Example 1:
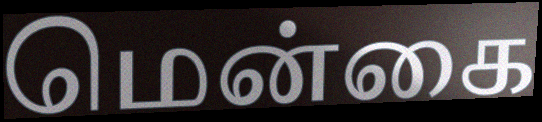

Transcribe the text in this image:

மென்கை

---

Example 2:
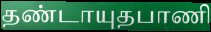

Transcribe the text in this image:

தண்டாயுதபாணி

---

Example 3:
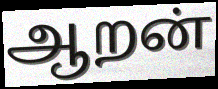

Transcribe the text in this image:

ஆறன்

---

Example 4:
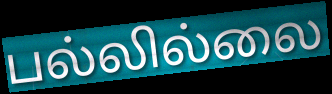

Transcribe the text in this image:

பல்லில்லை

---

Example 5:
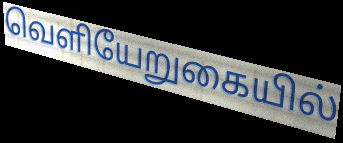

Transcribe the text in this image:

வெளியேறுகையில்